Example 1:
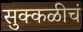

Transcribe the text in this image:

सुक्कळीचं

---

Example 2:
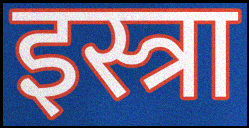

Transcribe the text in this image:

इस्त्रा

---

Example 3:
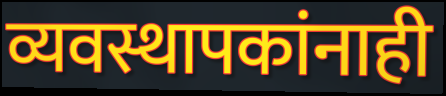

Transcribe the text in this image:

व्यवस्थापकांनाही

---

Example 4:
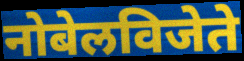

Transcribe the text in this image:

नोबेलविजेते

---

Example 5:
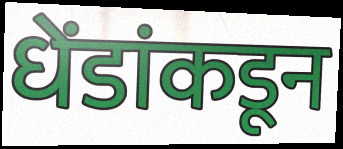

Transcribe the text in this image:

धेंडांकडून